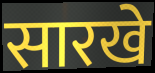
सारखे